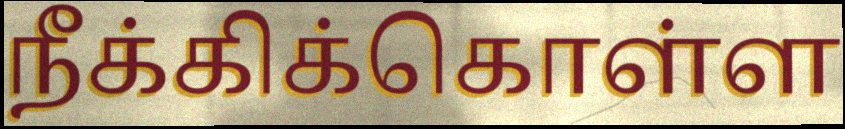
நீக்கிக்கொள்ள